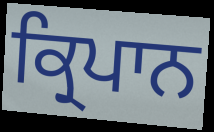
ਕ੍ਰਿਪਾਨ